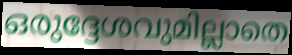
ഒരുദ്ദേശവുമില്ലാതെ